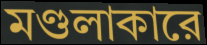
মণ্ডলাকারে